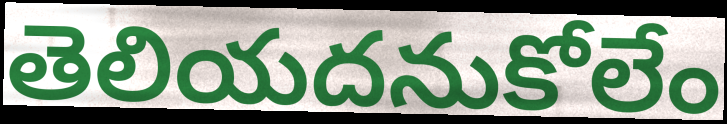
తెలియదనుకోలేం